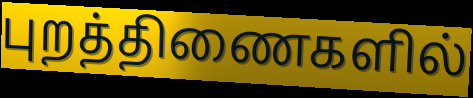
புறத்திணைகளில்